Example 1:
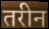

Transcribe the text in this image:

तरीन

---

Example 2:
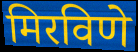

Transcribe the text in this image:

मिरविणे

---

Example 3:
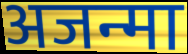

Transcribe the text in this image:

अजन्मा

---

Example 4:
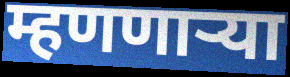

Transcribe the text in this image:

म्हणणाऱ्या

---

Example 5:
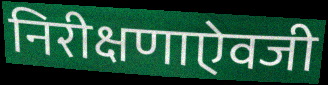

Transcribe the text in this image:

निरीक्षणाऐवजी